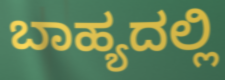
ಬಾಹ್ಯದಲ್ಲಿ